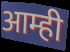
आम्‍ही